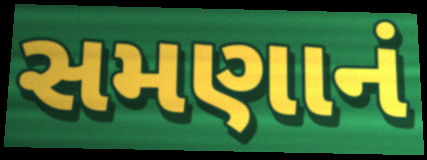
સમણાનં